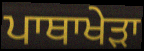
ਪਾਥਾਖੇੜਾ